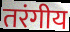
तरंगीय